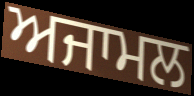
ਅਜਾਮਲ